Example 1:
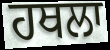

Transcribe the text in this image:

ਹਥਲਾ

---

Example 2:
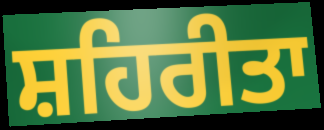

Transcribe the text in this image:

ਸ਼ਹਿਰੀਤਾ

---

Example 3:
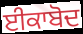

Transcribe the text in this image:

ਈਕਾਬੋਦ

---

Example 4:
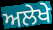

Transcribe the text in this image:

ਅਲੇਖੇ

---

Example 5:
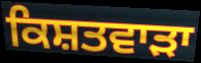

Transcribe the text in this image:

ਕਿਸ਼ਤਵਾੜਾ